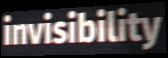
invisibility